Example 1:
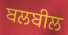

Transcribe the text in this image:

ਬਲਬੀਲ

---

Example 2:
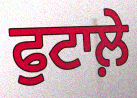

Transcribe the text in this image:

ਫੁਟਾਲ਼ੇ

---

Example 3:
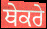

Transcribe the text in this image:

ਥੇਕਰੇ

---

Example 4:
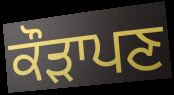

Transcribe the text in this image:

ਕੌੜਾਪਣ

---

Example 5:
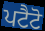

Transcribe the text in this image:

ਪਟੈਟੋ